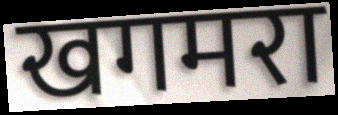
खगमरा